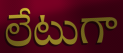
లేటుగా